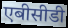
एबीसीडी